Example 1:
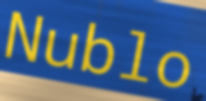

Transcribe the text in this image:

Nublo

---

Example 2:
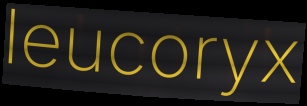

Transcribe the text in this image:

leucoryx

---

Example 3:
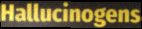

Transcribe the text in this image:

Hallucinogens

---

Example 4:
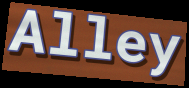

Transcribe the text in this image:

Alley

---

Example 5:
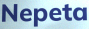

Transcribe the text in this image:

Nepeta